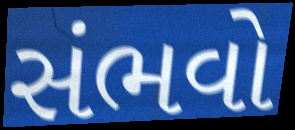
સંભવો